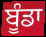
ਬੂੰਡਾ